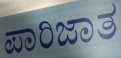
ಪಾರಿಜಾತ